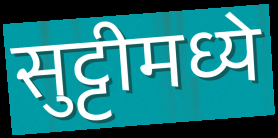
सुट्टीमध्ये